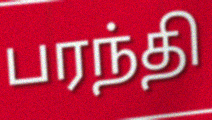
பரந்தி